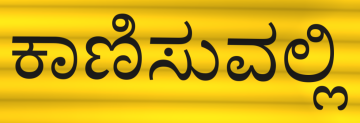
ಕಾಣಿಸುವಲ್ಲಿ